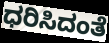
ಧರಿಸಿದಂತೆ